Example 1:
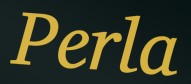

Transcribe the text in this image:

Perla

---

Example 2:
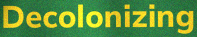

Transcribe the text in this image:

Decolonizing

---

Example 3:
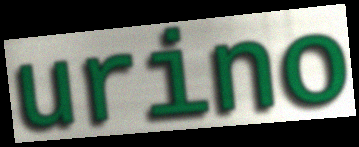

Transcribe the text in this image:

urino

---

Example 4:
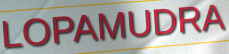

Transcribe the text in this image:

LOPAMUDRA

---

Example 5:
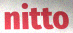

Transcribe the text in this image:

nitto